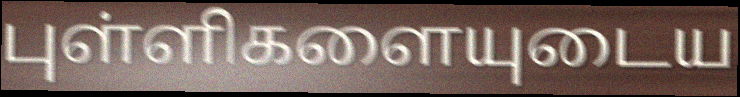
புள்ளிகளையுடைய